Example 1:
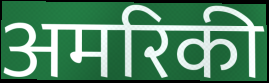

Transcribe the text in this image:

अमरिकी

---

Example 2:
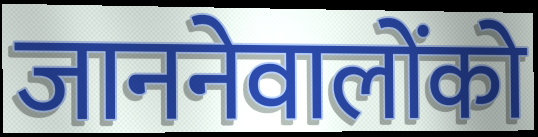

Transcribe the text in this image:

जाननेवालोंको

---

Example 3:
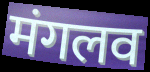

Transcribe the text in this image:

मंगलव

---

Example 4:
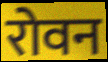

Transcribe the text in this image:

रोवन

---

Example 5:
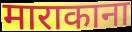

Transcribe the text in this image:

माराकाना